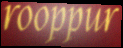
rooppur